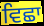
ਵਿਛਾ